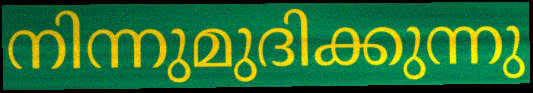
നിന്നുമുദിക്കുന്നു